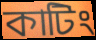
কাটিং